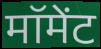
मॉमेंट